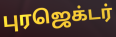
புரஜெக்டர்